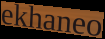
ekhaneo